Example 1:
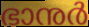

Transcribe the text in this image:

ഭാനുർ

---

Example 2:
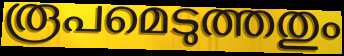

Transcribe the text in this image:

രൂപമെടുത്തതും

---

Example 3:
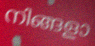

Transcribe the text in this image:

നിങ്ങളാ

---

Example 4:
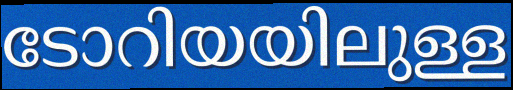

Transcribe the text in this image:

ടോറിയയിലുള്ള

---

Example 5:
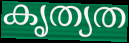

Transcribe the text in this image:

കൃത്യത